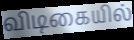
விடிகையில்